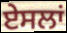
ਏਸਲਾਂ